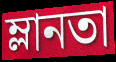
ম্লানতা